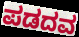
ಪಡದವ